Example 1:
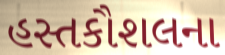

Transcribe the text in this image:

હસ્તકૌશલના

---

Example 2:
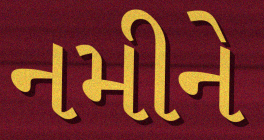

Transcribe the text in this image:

નમીને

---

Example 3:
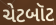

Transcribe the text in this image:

ચેટબૉટ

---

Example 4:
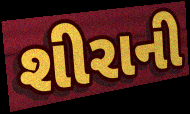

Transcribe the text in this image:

શીરાની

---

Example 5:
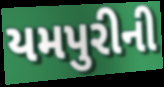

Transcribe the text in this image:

યમપુરીની